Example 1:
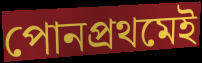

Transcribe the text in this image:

পোনপ্ৰথমেই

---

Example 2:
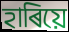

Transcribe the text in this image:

হাৰিয়ে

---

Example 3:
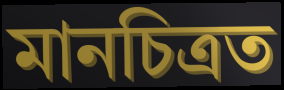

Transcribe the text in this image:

মানচিত্ৰত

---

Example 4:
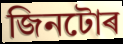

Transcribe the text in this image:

জিনটোৰ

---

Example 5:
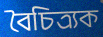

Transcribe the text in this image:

বৈচিত্ৰ্যক